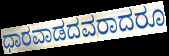
ಧಾರವಾಡದವರಾದರೂ